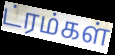
ட்ரம்கள்